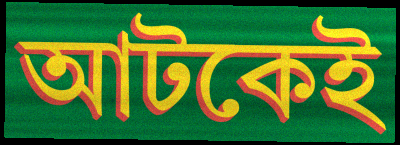
আটকেই